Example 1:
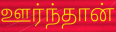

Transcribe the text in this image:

ஊர்ந்தான்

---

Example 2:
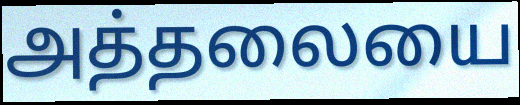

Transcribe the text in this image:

அத்தலையை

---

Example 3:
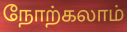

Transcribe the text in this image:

நோற்கலாம்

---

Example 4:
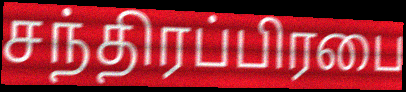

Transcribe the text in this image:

சந்திரப்பிரபை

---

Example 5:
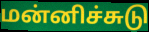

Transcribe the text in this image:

மன்னிச்சுடு